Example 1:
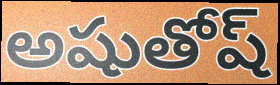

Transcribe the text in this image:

అషుతోష్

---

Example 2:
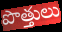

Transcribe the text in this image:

పొత్తులు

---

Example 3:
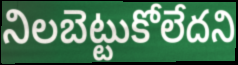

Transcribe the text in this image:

నిలబెట్టుకోలేదని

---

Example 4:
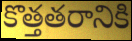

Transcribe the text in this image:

కొత్తతరానికి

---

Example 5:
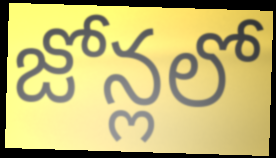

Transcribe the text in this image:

జోన్లలో